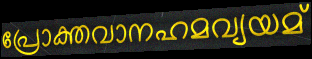
പ്രോക്തവാനഹമവ്യയമ്